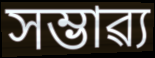
সম্ভাৱ্য